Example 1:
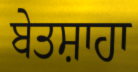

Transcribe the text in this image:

ਬੇਤਸ਼ਾਹਾ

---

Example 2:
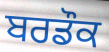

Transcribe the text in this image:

ਬਰਡੌਕ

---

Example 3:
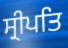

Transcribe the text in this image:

ਸ੍ਰੀਪਤਿ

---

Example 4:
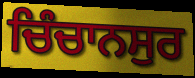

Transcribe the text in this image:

ਚਿੰਚਾਨਸੁਰ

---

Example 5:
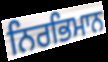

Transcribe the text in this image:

ਨਿਰਭਿਮਾਨ